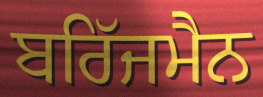
ਬਰਿੱਜਮੈਨ